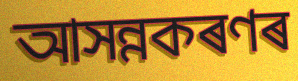
আসন্নকৰণৰ